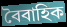
বৈবাহিক